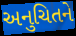
અનુચિતને